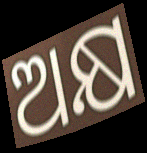
ଅକ୍ଷ